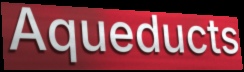
Aqueducts